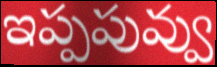
ఇప్పపువ్వు